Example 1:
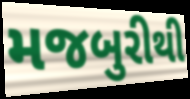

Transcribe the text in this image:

મજબુરીથી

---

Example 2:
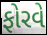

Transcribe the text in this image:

ફોરવે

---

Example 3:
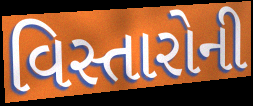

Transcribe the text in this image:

વિસ્તારોની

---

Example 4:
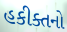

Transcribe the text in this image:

હકીક્તનો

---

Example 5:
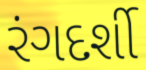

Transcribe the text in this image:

રંગદર્શી